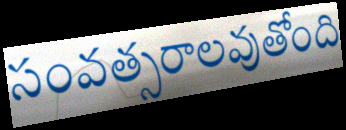
సంవత్సరాలవుతోంది